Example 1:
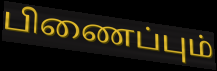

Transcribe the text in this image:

பிணைப்பும்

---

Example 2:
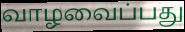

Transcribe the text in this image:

வாழவைப்பது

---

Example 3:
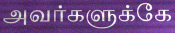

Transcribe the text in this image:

அவர்களுக்கே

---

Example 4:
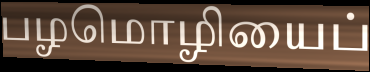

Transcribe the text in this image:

பழமொழியைப்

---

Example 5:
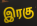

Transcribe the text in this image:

இரகு